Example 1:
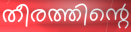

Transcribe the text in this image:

തീരത്തിന്റെ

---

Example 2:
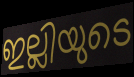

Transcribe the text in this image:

ഇല്ലിയുടെ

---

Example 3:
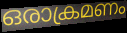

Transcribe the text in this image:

ഒരാക്രമണം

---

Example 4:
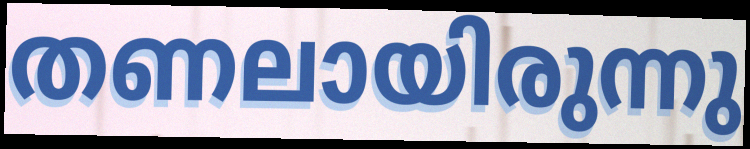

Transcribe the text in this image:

തണലായിരുന്നു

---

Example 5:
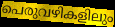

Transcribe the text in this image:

പെരുവഴികളിലും